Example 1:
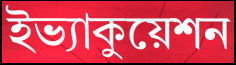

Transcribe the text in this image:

ইভ্যাকুয়েশন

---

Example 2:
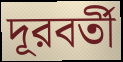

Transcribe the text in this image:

দূরবর্তী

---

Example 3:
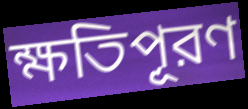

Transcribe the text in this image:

ক্ষতিপূরণ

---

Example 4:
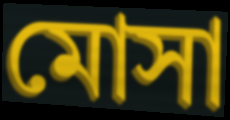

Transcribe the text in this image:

মোসা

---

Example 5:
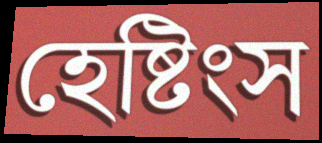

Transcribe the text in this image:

হেষ্টিংস